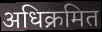
अधिक्रमित